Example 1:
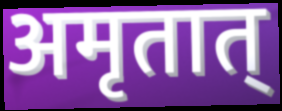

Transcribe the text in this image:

अमृतात्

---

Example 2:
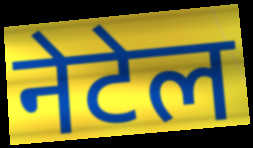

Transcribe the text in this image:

नेटेल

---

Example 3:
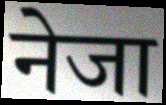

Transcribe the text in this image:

नेजा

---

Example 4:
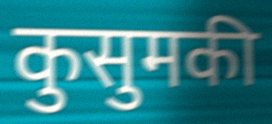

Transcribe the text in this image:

कुसुमकी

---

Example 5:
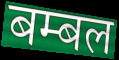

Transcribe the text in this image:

बम्बल